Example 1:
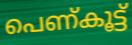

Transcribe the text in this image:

പെണ്കൂട്ട്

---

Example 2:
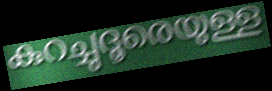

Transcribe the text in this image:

കുറച്ചുദൂരെയുള്ള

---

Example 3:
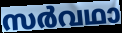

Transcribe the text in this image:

സർവഥാ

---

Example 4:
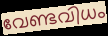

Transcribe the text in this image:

വേണ്ടവിധം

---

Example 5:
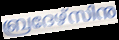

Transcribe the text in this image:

ബ്രദേഴ്സിനു